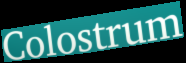
Colostrum